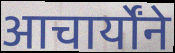
आचार्योंने